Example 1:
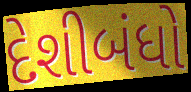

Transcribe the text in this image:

દેશીબંધો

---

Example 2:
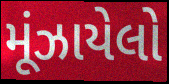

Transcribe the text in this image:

મૂંઝાયેલો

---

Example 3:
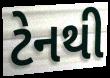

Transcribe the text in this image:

ટેનથી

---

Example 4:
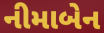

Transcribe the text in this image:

નીમાબેન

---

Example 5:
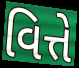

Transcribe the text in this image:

વિત્તે